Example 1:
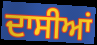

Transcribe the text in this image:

ਦਾਸੀਆਂ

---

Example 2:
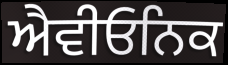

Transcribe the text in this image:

ਐਵੀਓਨਿਕ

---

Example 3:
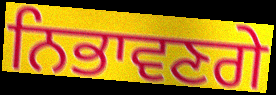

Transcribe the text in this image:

ਨਿਭਾਵਣਗੇ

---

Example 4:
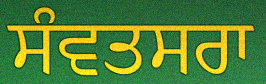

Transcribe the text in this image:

ਸੰਵਤਸਰਾ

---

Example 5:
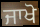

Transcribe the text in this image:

ਜਾਖੋ